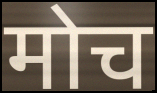
मोच